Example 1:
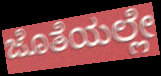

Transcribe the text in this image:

ಜೊತೆಯಲ್ಲೇ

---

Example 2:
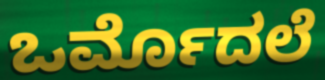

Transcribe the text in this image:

ಒರ್ಮೊದಲೆ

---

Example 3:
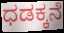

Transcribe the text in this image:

ಧಡಕ್ಕನೆ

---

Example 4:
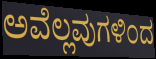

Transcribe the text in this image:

ಅವೆಲ್ಲವುಗಳಿಂದ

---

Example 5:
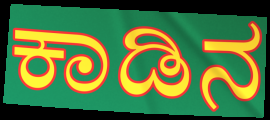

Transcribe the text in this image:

ಕಾಡಿನ